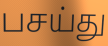
பசய்து